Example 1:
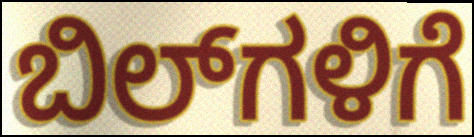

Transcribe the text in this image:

ಬಿಲ್‌ಗಳಿಗೆ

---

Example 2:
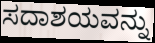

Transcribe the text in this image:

ಸದಾಶಯವನ್ನು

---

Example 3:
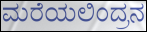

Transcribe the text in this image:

ಮರೆಯಲಿಂದ್ರನ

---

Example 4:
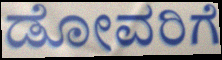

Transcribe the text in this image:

ಡೋವರಿಗೆ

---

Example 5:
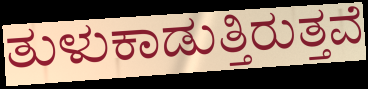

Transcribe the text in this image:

ತುಳುಕಾಡುತ್ತಿರುತ್ತವೆ